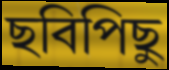
ছবিপিছু